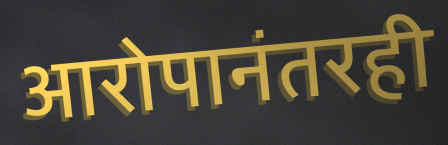
आरोपानंतरही